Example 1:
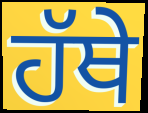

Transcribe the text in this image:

ਹੱਥੇ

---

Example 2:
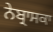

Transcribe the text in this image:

ਨੇਬ੍ਰਾਸਕਾ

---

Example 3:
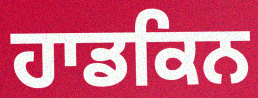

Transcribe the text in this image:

ਹਾਡਕਿਨ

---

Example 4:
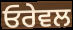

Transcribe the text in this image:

ਓਰੇਵਲ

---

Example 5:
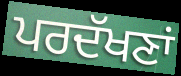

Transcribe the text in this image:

ਪਰਦੱਖਣਾਂ